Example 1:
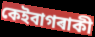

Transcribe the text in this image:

কেইবাগৰাকী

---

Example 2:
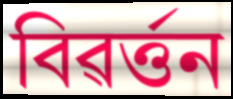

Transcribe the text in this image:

বিৱৰ্ত্তন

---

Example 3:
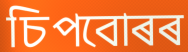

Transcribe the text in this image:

চিপবোৰৰ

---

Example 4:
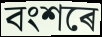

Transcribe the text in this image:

বংশৰে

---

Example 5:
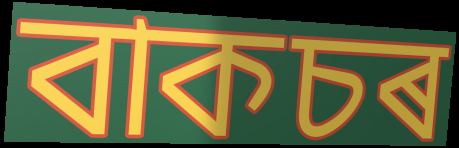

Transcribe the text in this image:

বাকচৰ